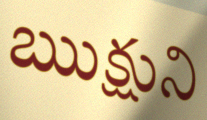
ఋక్షుని